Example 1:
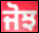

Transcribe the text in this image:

ਜੋਝ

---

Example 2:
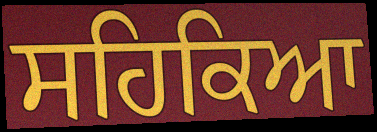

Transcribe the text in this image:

ਸਹਿਕਿਆ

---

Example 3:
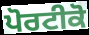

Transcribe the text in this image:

ਪੋਰਟੀਕੋ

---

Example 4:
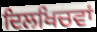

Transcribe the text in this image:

ਦਿਲਖਿਚਵਾਂ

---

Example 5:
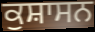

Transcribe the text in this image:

ਕੁਸ਼ਾਸਨ